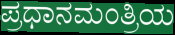
ಪ್ರಧಾನಮಂತ್ರಿಯ